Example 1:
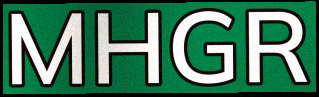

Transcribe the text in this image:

MHGR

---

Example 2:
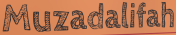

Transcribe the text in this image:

Muzadalifah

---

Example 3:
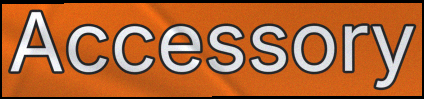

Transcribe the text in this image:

Accessory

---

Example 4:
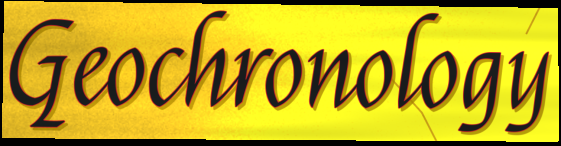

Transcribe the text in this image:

Geochronology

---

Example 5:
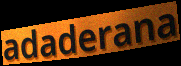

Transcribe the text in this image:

adaderana